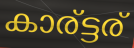
കാര്ട്ടര്